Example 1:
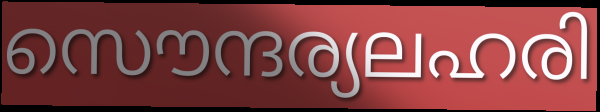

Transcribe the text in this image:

സൌന്ദര്യലഹരി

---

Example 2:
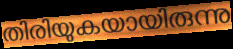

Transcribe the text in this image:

തിരിയുകയായിരുന്നു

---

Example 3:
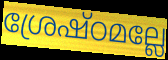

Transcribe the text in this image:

ശ്രേഷ്ഠമല്ലേ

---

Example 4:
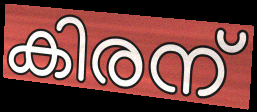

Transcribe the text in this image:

കിരന്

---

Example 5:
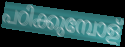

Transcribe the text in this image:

പഠിക്കുമ്പോള്